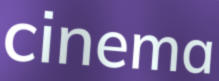
cinema